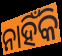
ନାହିଁକି